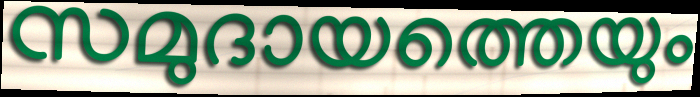
സമുദായത്തെയും